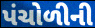
પંચોળીની